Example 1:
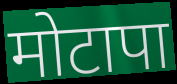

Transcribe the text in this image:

मोटापा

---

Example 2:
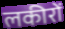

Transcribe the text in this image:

लकीरों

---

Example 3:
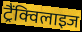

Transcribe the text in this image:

ट्रैंक्विलाइज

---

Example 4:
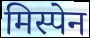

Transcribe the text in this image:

मिस्पेन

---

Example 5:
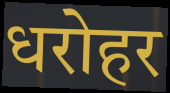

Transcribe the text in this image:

धरोहर